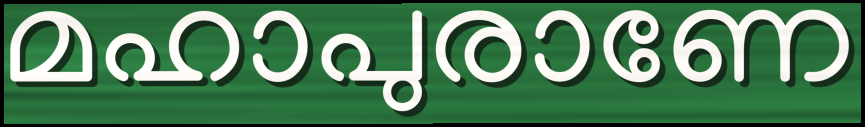
മഹാപുരാണേ